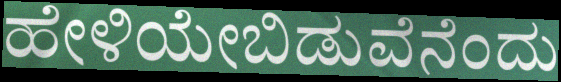
ಹೇಳಿಯೇಬಿಡುವೆನೆಂದು